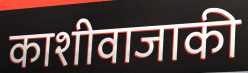
काशीवाजाकी